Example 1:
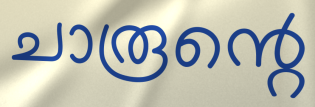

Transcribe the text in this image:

ചാരൂന്റെ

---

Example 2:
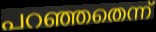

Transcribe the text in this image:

പറഞ്ഞതെന്ന്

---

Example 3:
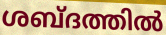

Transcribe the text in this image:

ശബ്ദത്തിൽ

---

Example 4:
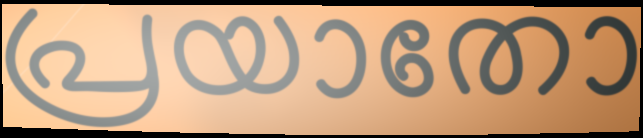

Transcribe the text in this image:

പ്രയാതോ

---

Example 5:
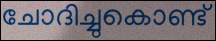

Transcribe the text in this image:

ചോദിച്ചുകൊണ്ട്